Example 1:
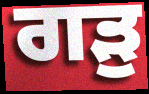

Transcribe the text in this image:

ਗੜੁ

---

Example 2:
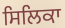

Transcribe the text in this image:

ਸਿਲਿਕਾ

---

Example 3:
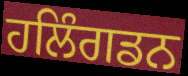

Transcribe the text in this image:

ਹਲਿੰਗਡਨ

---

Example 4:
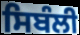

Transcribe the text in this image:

ਸਿਬੰਲੀ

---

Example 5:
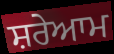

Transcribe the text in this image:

ਸ਼ਰੇਆਮ